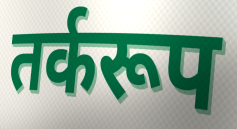
तर्करूप